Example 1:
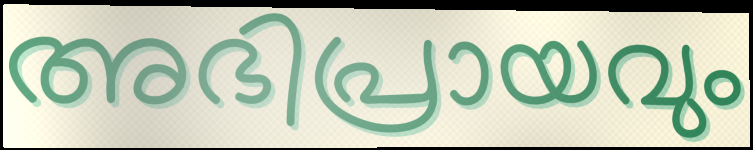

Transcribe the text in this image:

അഭിപ്രായവും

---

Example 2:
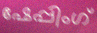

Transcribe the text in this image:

ഷേപ്പിംഗ്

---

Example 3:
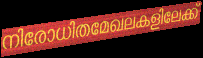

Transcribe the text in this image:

നിരോധിതമേഖലകളിലേക്ക്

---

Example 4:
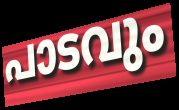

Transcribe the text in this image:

പാടവും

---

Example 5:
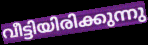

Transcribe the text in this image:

വീട്ടിയിരിക്കുന്നു